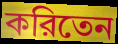
করিতেন